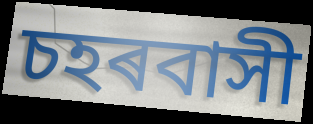
চহৰবাসী